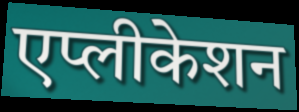
एप्लीकेशन